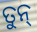
ତୁନ୍